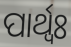
ପାର୍ଥ୍ବଃ